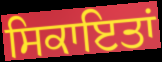
ਸਿਕਾਇਤਾਂ